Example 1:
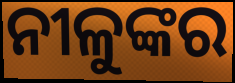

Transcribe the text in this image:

ନୀଳୁଙ୍କର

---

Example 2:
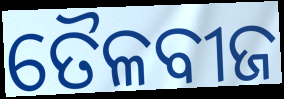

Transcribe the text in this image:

ତୈଳବୀଜ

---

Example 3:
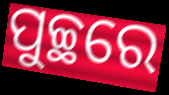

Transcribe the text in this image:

ପୁଚ୍ଛରେ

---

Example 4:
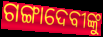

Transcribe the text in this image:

ଗଙ୍ଗାଦେବୀଙ୍କୁ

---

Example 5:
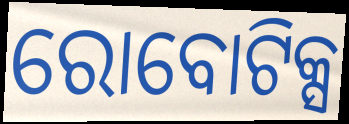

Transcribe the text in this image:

ରୋବୋଟିକ୍ସ